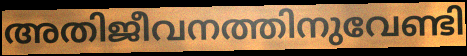
അതിജീവനത്തിനുവേണ്ടി